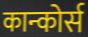
कान्कोर्स